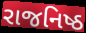
રાજનિષ્ઠ